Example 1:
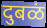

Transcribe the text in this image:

दुबळं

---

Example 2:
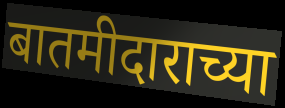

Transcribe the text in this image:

बातमीदाराच्या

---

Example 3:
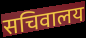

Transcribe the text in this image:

सचिवालय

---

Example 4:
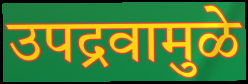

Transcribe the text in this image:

उपद्रवामुळे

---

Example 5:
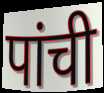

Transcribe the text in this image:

पांची